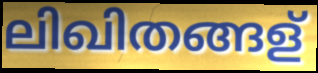
ലിഖിതങ്ങള്